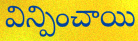
విన్పించాయి